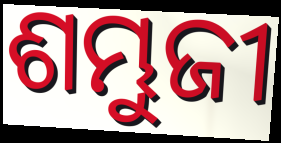
ଶମ୍ଭୁଜୀ